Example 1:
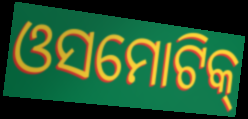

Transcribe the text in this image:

ଓସମୋଟିକ୍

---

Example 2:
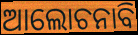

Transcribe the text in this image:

ଆଲୋଚନାବି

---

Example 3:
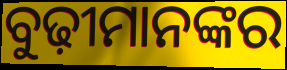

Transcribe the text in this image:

ବୁଢ଼ୀମାନଙ୍କର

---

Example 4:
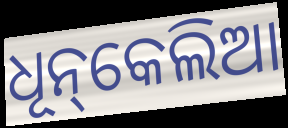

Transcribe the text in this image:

ଧୂନ୍‌କେଲିଆ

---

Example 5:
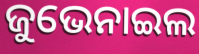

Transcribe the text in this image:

ଜୁଭେନାଇଲ